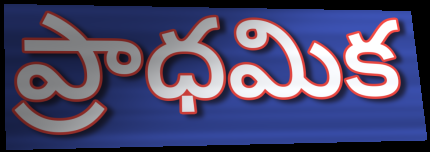
ప్రాధమిక